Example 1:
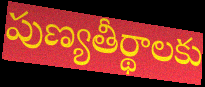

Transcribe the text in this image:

పుణ్యతీర్థాలకు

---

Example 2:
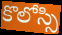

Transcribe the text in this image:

కొలోస్సి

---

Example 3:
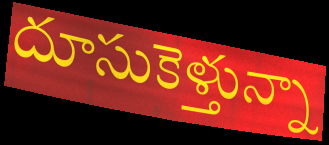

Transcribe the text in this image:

దూసుకెళ్తున్నా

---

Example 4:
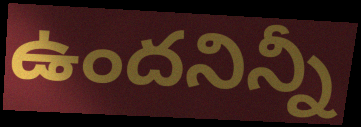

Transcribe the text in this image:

ఉందనిన్నీ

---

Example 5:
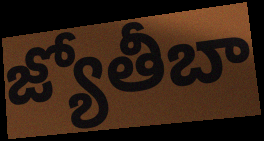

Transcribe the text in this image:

జ్యోతీబా